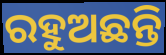
ରହୁଅଛନ୍ତି